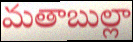
మతాబుల్లా